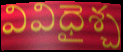
వివిధైశ్చ